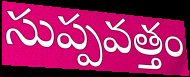
సుప్పవత్తం